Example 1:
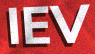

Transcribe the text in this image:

IEV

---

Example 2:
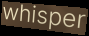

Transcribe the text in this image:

whisper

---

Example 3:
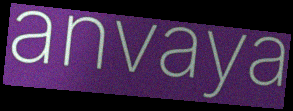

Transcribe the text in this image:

anvaya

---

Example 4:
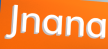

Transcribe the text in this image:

Jnana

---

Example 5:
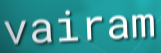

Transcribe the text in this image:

vairam